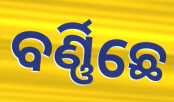
ବର୍ଣ୍ଣିଛେ